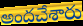
అందచేశారు